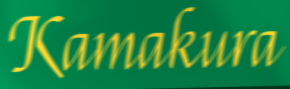
Kamakura